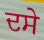
ਦਸੇ